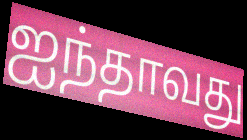
ஐந்தாவது